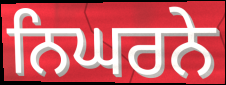
ਨਿਘਰਨੇ